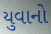
યુવાનો